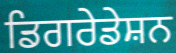
ਡਿਗਰੇਡੇਸ਼ਨ